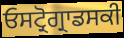
ਓਸਟ੍ਰੋਗ੍ਰਾਡਸਕੀ